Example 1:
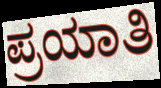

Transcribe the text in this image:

ಪ್ರಯಾತಿ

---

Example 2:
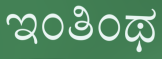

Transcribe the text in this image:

ಇಂತಿಂಥ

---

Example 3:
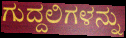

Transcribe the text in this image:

ಗುದ್ದಲಿಗಳನ್ನು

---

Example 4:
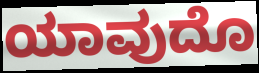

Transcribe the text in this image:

ಯಾವುದೊ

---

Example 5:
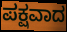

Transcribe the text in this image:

ಪಕ್ಷವಾದ